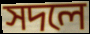
সদলে